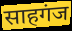
साहगंज